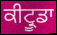
ਕੀਟ੍ਰੂਡਾ